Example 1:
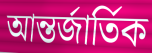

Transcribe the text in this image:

আন্তর্জার্তিক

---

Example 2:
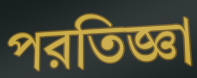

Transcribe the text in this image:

পরতিজ্ঞা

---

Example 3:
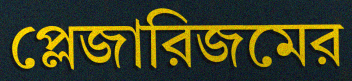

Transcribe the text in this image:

প্লেজারিজমের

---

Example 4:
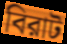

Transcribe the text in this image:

বিরাট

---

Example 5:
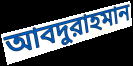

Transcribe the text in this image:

আবদুরাহমান